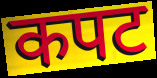
कपट